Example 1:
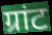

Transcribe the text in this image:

ग्रांट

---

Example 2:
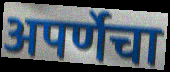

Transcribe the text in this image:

अपर्णेचा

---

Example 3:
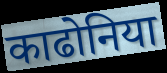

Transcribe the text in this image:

काढोनिया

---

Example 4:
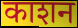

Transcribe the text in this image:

काशन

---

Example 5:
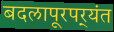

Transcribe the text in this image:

बदलापूरपर्यंत